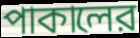
পাকালের